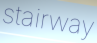
stairway